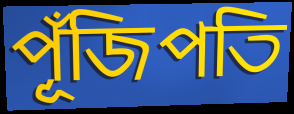
পূঁজিপতি